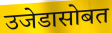
उजेडासोबत